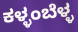
ಕಳ್ಳಂಬೆಳ್ಳ